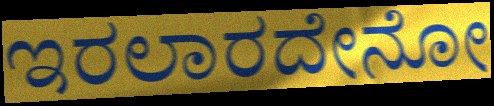
ಇರಲಾರದೇನೋ